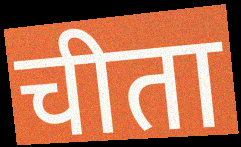
चीता